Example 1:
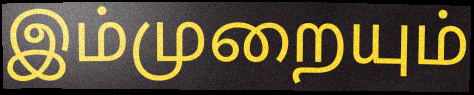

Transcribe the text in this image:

இம்முறையும்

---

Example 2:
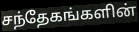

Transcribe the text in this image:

சந்தேகங்களின்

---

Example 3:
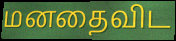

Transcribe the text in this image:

மனதைவிட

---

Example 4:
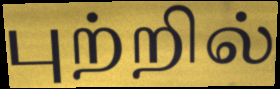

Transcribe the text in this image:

புற்றில்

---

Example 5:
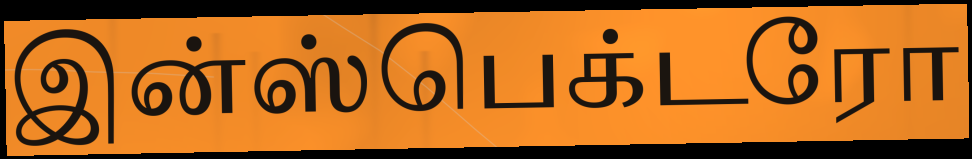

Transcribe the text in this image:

இன்ஸ்பெக்டரோ